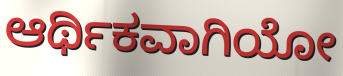
ಆರ್ಥಿಕವಾಗಿಯೋ